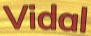
Vidal